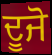
ਦੂਜੋ